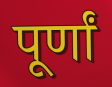
पूर्णां